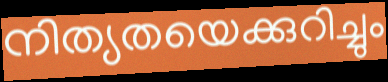
നിത്യതയെക്കുറിച്ചും